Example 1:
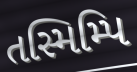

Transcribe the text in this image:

તસ્મિમ્પિ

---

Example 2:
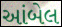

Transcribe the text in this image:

આંબેલ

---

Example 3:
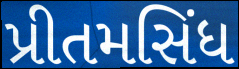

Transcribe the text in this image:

પ્રીતમસિંધ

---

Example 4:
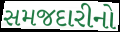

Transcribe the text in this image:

સમજદારીનો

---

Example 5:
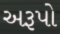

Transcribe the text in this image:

અરૂપો